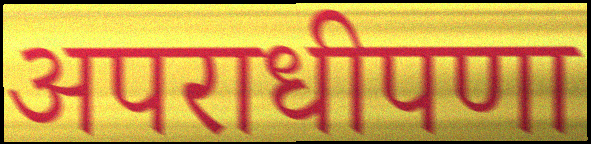
अपराधीपणा